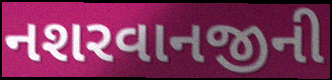
નશરવાનજીની